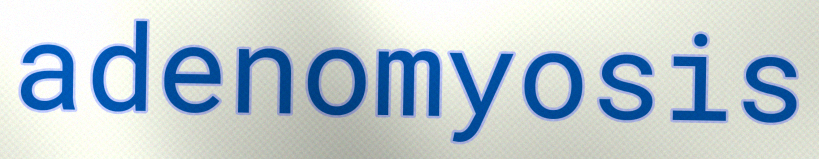
adenomyosis